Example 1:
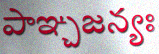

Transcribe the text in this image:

పాఞ్చజన్యః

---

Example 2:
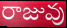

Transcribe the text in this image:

రాజువు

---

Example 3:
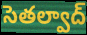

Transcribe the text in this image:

సెతల్వాద్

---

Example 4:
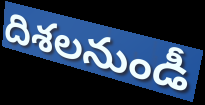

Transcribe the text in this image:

దిశలనుండీ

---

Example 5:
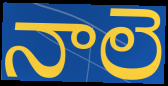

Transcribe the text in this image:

నాలె